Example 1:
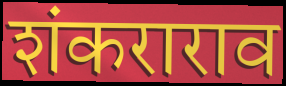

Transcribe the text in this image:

शंकराराव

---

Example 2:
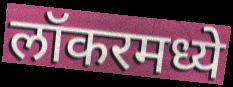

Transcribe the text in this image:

लॉकरमध्ये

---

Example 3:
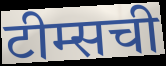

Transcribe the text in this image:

टीम्सची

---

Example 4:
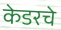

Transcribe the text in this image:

केडरचे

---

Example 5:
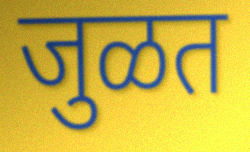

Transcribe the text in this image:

जुळत